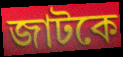
জাটকে